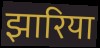
झारिया